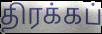
திரக்கப்